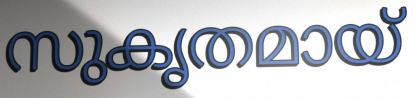
സുകൃതമായ്